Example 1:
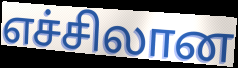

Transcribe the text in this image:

எச்சிலான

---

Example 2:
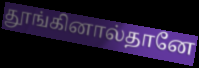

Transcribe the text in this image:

தூங்கினால்தானே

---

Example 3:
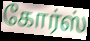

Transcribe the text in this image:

கோர்ஸ்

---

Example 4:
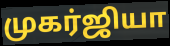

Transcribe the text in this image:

முகர்ஜியா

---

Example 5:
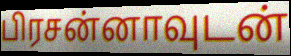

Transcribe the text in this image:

பிரசன்னாவுடன்